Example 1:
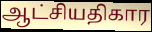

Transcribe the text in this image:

ஆட்சியதிகார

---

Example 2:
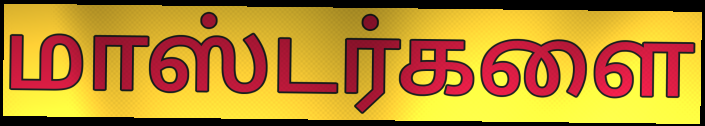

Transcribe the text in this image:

மாஸ்டர்களை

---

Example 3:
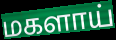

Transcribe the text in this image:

மகளாய்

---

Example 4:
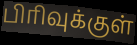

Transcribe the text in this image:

பிரிவுக்குள்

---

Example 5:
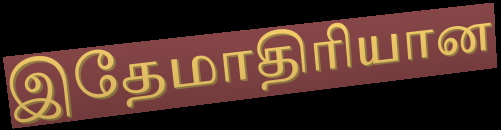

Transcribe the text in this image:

இதேமாதிரியான